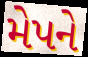
મેપને